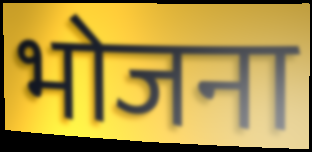
भोजना